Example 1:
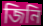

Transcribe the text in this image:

জিনি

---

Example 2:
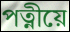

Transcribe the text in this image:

পত্নীয়ে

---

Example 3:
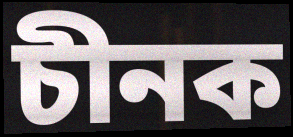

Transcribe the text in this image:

চীনক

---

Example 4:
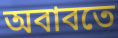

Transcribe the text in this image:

অবাবতে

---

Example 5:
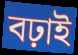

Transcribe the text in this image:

বঢ়াই